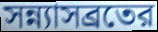
সন্ন্যাসব্রতের